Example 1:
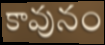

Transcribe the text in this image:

కావునం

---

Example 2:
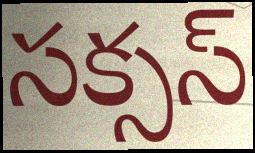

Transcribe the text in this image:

సక్సస్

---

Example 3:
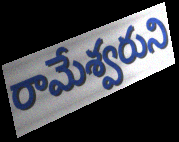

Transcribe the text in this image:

రామేశ్వరుని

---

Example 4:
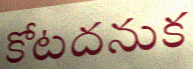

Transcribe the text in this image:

కోటదనుక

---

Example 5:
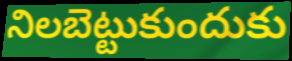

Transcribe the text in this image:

నిలబెట్టుకుందుకు